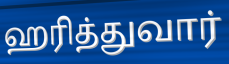
ஹரித்துவார்